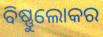
ବିଷ୍ଣୁଲୋକର